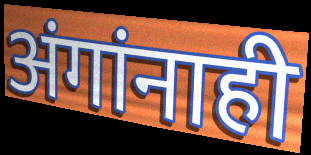
अंगांनाही